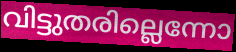
വിട്ടുതരില്ലെന്നോ